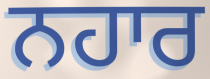
ਨਹਾਰ